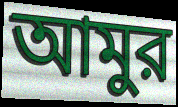
আমুর